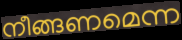
നീങ്ങണമെന്ന